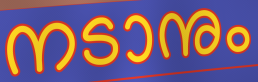
നടാനും